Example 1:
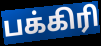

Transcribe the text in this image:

பக்கிரி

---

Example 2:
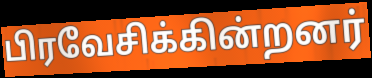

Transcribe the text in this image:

பிரவேசிக்கின்றனர்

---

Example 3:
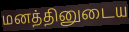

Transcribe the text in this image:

மனத்தினுடைய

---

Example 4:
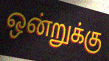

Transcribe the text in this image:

ஒன்றுக்கு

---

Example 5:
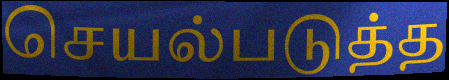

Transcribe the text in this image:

செயல்படுத்த